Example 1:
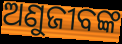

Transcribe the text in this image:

ଅଣୁଜୀବଙ୍କ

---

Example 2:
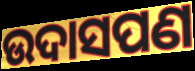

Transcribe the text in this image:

ଉଦାସପଣ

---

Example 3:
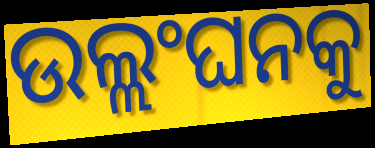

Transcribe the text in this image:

ଉଲ୍ଲଂଘନକୁ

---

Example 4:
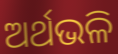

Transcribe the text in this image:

ଅର୍ଥଭଳି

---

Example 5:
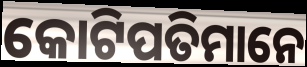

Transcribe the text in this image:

କୋଟିପତିମାନେ